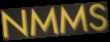
NMMS